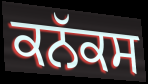
ਕਨੱਕਸ